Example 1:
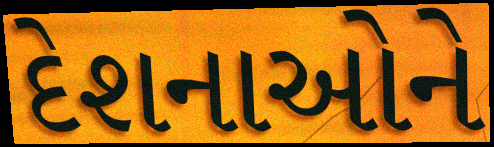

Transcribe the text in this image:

દેશનાઓને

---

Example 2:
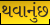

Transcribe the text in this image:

થવાનુંછ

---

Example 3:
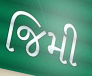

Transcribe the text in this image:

જિમી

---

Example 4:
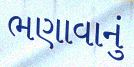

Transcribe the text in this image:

ભણાવાનું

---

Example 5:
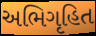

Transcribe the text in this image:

અભિગૃહિત